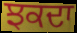
ਝਕਦਾ